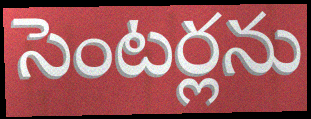
సెంటర్లను